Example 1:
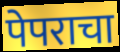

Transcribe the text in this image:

पेपराचा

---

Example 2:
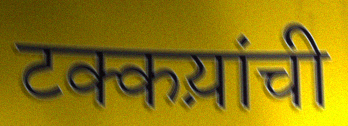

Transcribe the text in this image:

टक्कय़ांची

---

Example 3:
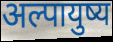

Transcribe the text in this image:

अल्पायुष्य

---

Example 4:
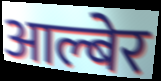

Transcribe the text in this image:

आल्बेर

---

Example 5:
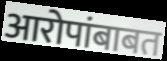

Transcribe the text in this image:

आरोपांबाबत